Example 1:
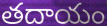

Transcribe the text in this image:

తదాయం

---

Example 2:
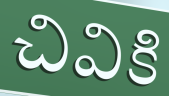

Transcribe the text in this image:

చివికి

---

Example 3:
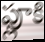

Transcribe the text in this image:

ఫ్లూకి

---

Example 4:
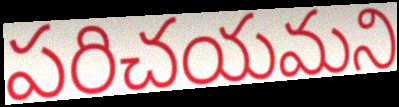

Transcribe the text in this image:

పరిచయమని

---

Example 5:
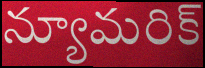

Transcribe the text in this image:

న్యూమరిక్